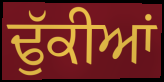
ਢੁੱਕੀਆਂ